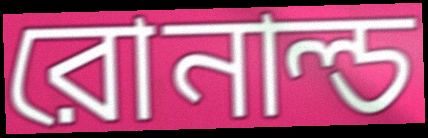
রোনাল্ড